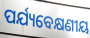
ପର୍ଯ୍ୟବେକ୍ଷଣୀୟ